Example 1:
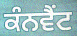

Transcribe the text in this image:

ਕੰਨਵੈਂਟ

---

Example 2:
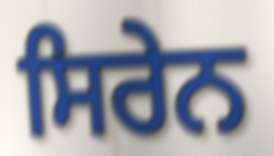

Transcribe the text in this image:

ਸਿਰੇਨ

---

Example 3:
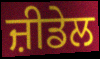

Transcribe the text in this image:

ਜ਼ੀਡੇਲ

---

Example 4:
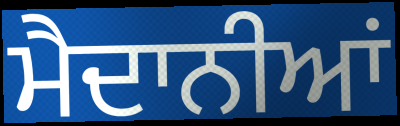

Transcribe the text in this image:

ਮੈਦਾਨੀਆਂ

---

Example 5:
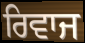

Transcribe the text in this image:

ਰਿਵਾਜ